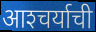
आश्‍चर्याची